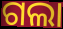
ଗଲା